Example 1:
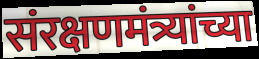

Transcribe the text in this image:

संरक्षणमंत्र्यांच्या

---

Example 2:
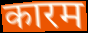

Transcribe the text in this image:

कारम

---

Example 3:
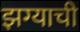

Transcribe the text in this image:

झग्याची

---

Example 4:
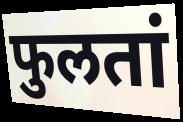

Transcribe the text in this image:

फुलतां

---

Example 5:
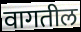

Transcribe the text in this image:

वागतील